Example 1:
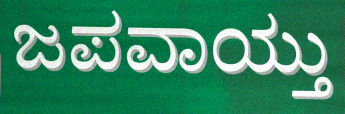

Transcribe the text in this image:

ಜಪವಾಯ್ತು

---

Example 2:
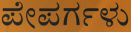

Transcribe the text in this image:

ಪೇಪರ್ಗಳು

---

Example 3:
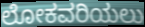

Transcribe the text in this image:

ಲೋಕವರಿಯಲು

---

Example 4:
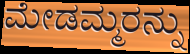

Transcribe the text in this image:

ಮೇಡಮ್ಮರನ್ನು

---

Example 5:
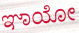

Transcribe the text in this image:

ಞಾಯೋ